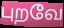
புறவே